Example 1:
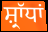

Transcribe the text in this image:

ਸ਼੍ਰਾੱਧਾਂ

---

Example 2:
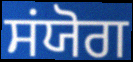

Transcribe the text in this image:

ਸਂਯੋਗ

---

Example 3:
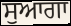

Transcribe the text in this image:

ਸੁਆਗਾ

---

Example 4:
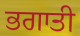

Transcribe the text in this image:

ਭਗਾਤੀ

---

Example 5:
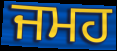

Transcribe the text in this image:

ਜਮਹ